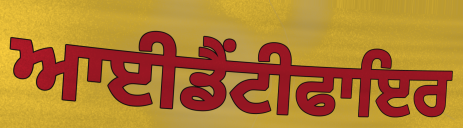
ਆਈਡੈਂਟੀਫਾਇਰ